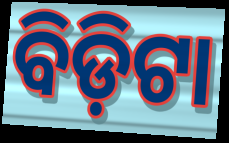
ବିଡ଼ିଟା